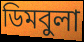
ডিমবুলা